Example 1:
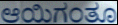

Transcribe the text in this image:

ಆಯಿಗಂತೂ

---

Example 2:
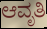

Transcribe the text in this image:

ಆವೃತಿ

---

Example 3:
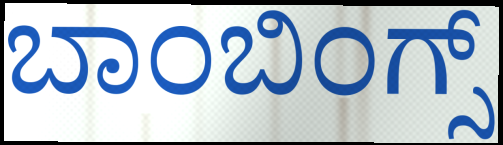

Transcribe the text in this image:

ಬಾಂಬಿಂಗ್ಸ್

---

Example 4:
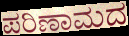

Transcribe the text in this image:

ಪರಿಣಾಮದ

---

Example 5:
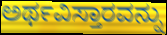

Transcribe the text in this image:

ಅರ್ಥವಿಸ್ತಾರವನ್ನು